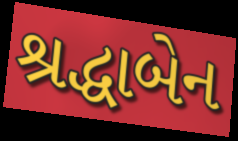
શ્રદ્ધાબેન